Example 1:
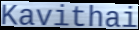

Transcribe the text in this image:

Kavithai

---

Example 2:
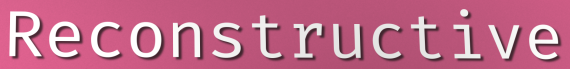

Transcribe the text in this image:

Reconstructive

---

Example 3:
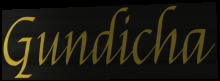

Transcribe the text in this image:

Gundicha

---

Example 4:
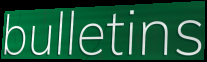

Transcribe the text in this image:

bulletins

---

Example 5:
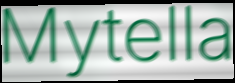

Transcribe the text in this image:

Mytella